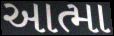
આત્મા